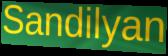
Sandilyan